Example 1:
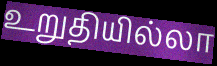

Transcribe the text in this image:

உறுதியில்லா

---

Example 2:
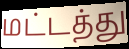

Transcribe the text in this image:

மட்டத்து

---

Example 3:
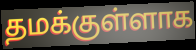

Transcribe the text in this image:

தமக்குள்ளாக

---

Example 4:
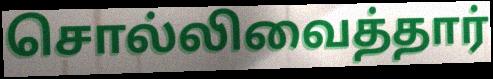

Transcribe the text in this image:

சொல்லிவைத்தார்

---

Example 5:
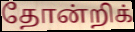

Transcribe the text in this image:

தோன்றிக்